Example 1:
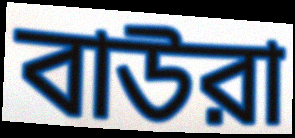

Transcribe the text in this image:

বাউরা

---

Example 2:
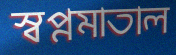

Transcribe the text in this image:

স্বপ্নমাতাল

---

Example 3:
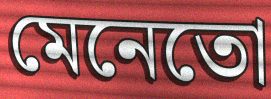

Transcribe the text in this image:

মেনেতো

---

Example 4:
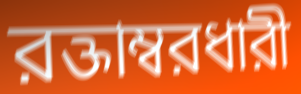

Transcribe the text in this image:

রক্তাম্বরধারী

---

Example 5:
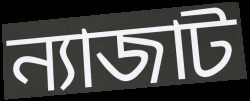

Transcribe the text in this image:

ন্যাজাট